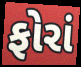
ફોરાં